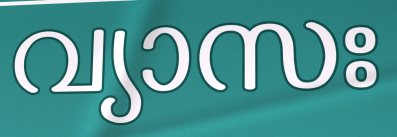
വ്യാസഃ